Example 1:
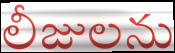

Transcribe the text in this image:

లీజులను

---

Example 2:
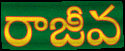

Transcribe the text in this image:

రాజీవ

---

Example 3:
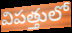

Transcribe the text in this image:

విపత్తులో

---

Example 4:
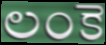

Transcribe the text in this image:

లంకె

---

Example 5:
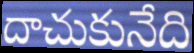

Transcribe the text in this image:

దాచుకునేది